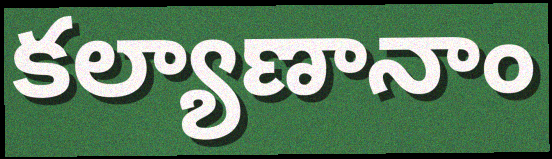
కల్యాణానాం